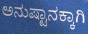
ಅನುಷ್ಟಾನಕ್ಕಾಗಿ